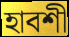
হাবশী